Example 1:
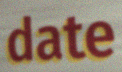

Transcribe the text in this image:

date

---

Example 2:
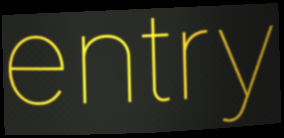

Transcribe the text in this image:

entry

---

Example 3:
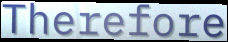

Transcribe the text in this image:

Therefore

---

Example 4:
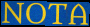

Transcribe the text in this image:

NOTA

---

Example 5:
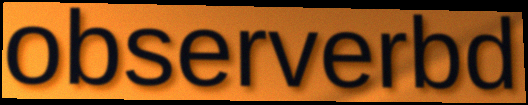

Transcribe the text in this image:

observerbd